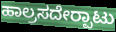
ಹಾಲ್ರಸದೇರ‍್ಪಾಟು